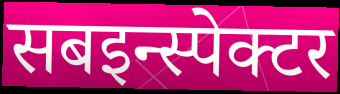
सबइन्स्पेक्टर